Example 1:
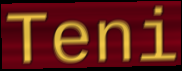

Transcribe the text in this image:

Teni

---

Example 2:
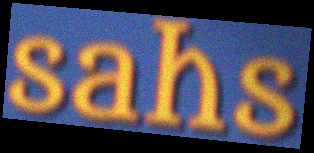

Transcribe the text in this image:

sahs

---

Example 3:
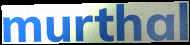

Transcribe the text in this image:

murthal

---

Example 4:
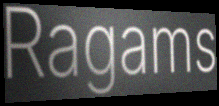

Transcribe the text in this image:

Ragams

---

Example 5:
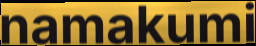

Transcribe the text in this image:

namakumi